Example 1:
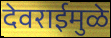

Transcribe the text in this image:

देवराईमुळे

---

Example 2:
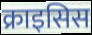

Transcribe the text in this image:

क्राइसिस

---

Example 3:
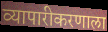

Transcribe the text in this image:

व्यापारीकरणाला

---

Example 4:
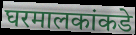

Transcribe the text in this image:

घरमालकांकडे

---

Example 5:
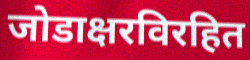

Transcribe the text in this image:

जोडाक्षरविरहित